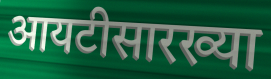
आयटीसारख्या